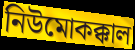
নিউমোকক্কাল